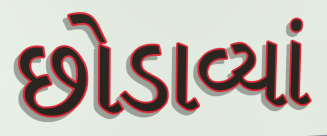
છોડાવ્યાં